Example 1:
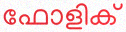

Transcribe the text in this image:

ഫോളിക്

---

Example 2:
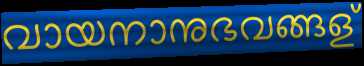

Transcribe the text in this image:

വായനാനുഭവങ്ങള്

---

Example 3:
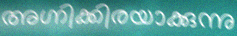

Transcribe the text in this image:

അഗ്നിക്കിരയാക്കുന്നു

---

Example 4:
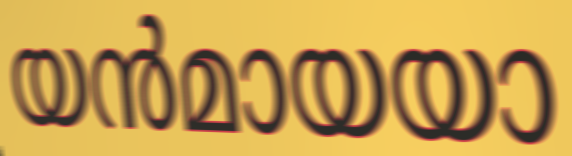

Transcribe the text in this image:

യൻമായയാ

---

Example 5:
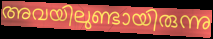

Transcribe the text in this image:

അവയിലുണ്ടായിരുന്നു